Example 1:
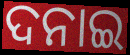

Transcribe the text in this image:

ଦନାଇ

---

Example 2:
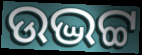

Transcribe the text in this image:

ଉଦ୍ଭଟ୍ଟ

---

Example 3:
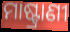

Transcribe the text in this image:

ମାଷ୍ଟ୍ରାଣୀ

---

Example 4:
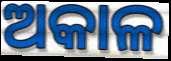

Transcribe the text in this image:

ଅକାଳ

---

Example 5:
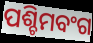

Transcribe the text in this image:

ପଶ୍ଚିମବଂଗ